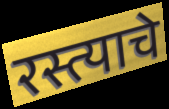
रस्त्याचे